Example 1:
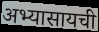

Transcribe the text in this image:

अभ्यासायची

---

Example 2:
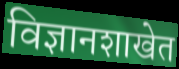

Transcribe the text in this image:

विज्ञानशाखेत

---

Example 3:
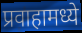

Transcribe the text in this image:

प्रवाहामध्ये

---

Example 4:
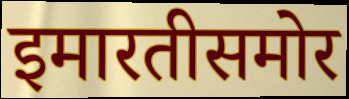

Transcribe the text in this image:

इमारतीसमोर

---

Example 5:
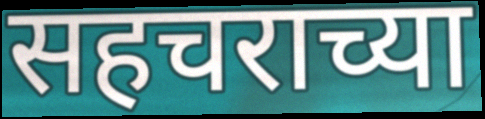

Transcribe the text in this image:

सहचराच्या